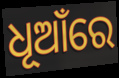
ଧୂଆଁରେ